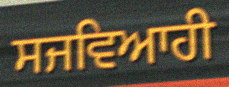
ਸਜਵਿਆਹੀ